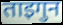
ताइगुन